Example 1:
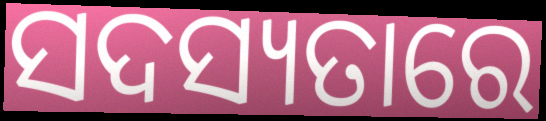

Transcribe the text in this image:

ସଦସ୍ୟତାରେ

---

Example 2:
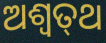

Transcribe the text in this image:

ଅଶ୍ଵତ୍‍ଥ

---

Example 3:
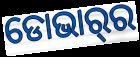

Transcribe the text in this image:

ଡୋଭାର୍‌ର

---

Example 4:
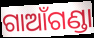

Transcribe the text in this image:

ଗାଆଁଗଣ୍ଡା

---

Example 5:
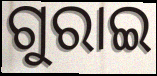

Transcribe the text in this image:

ଗୁରାଇ